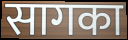
सागका